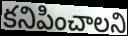
కనిపించాలని